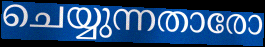
ചെയ്യുന്നതാരോ